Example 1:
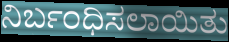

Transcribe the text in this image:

ನಿರ್ಬಂಧಿಸಲಾಯಿತು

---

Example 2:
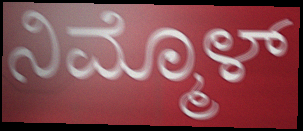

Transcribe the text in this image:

ನಿಮ್ಮೊಳ್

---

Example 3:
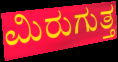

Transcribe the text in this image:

ಮಿರುಗುತ್ತ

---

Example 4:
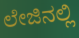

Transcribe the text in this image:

ಲೇಜಿನಲ್ಲಿ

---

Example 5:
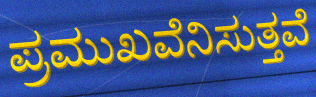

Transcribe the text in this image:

ಪ್ರಮುಖವೆನಿಸುತ್ತವೆ